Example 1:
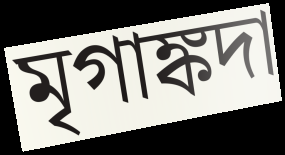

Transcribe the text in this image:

মৃগাঙ্কদা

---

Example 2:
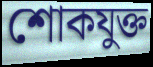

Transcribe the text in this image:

শোকযুক্ত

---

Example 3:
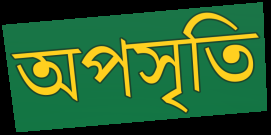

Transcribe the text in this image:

অপসৃতি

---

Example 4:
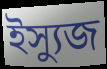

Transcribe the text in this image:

ইস্যুজ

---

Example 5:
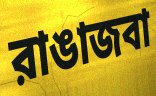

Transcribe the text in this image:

রাঙাজবা